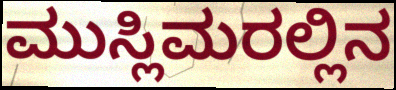
ಮುಸ್ಲಿಮರಲ್ಲಿನ